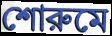
শোরুমে